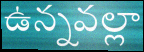
ఉన్నవల్లా